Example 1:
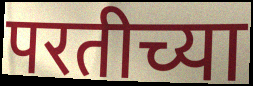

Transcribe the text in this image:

परतीच्या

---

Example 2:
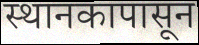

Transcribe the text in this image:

स्थानकापासून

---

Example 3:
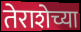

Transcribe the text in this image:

तेराशेच्या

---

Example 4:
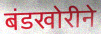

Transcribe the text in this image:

बंडखोरीने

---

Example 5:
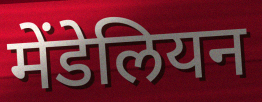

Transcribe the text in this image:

मेंडेलियन